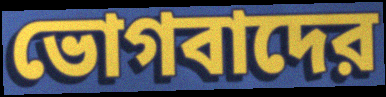
ভোগবাদের